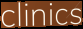
clinics